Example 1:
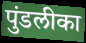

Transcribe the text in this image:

पुंडलीका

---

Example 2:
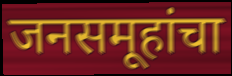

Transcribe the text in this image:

जनसमूहांचा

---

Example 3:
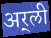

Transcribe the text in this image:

अर्ली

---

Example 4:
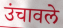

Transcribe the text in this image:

उंचावले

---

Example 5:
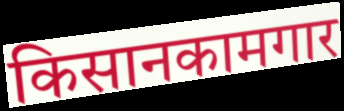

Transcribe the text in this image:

किसानकामगार